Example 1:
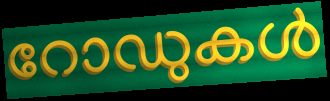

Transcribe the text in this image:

റോഡുകൾ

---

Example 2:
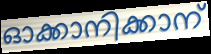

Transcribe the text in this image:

ഓക്കാനിക്കാന്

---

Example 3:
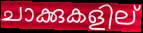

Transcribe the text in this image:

ചാക്കുകളില്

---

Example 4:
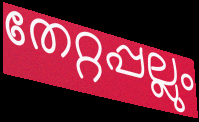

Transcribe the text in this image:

തേറ്റപ്പല്ലും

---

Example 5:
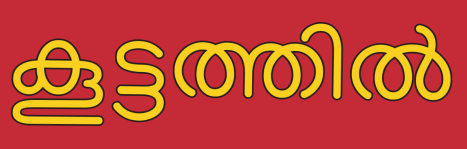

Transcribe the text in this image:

കൂട്ടത്തിൽ